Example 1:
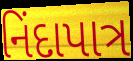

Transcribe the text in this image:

નિંદાપાત્ર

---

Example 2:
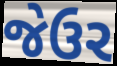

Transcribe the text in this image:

જેઉર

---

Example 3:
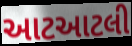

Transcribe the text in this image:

આટઆટલી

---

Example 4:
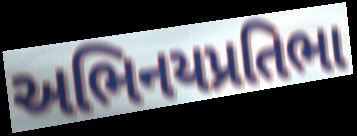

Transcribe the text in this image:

અભિનયપ્રતિભા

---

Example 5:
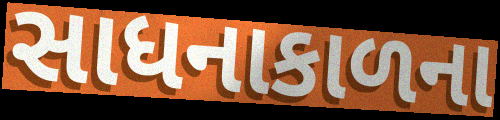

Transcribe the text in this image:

સાધનાકાળના